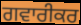
ਗਵਾਰੀਕਰ